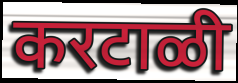
करटाळी